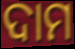
ଦାମ